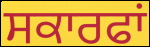
ਸਕਾਰਫਾਂ